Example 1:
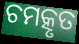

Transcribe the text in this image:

ଚମତ୍କୃତ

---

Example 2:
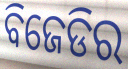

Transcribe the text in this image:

ବିଜେଡିର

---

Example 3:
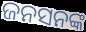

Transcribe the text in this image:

ଜନସନଙ୍କ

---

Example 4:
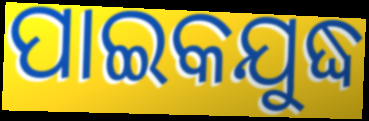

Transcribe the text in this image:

ପାଇକଯୁଦ୍ଧ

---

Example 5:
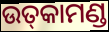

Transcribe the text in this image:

ଉତ୍‌କାମଣ୍ଡ